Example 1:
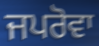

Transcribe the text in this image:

ਜਪਰੋਵਾ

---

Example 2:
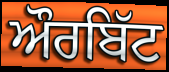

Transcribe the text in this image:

ਔਰਬਿੱਟ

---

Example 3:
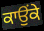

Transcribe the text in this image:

ਕਾਉਂਕੇ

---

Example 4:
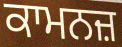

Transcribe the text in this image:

ਕਾਮਨਜ਼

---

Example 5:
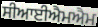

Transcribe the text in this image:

ਸੀਆਈਐਮਐਮ